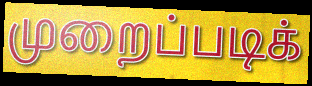
முறைப்படிக்